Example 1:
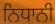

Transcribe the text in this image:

ਨਿਧਾਨੀ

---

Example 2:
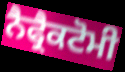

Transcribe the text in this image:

ਨੈਫ੍ਰੈਕਟੋਮੀ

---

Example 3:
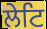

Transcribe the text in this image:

ਲੇਟਿ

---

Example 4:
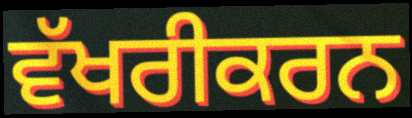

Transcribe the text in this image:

ਵੱਖਰੀਕਰਨ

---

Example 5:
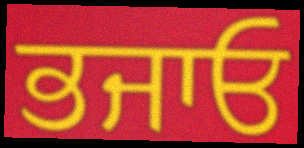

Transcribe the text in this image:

ਭਜਾਓ